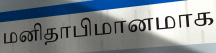
மனிதாபிமானமாக